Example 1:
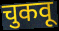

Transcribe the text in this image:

चुकवू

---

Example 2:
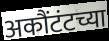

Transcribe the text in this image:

अकौंटंटच्या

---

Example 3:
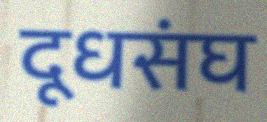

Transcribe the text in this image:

दूधसंघ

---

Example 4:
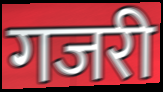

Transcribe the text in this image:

गजरी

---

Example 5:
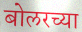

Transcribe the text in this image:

बोलरच्या